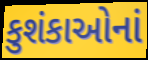
કુશંકાઓનાં